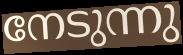
നേടുന്നു